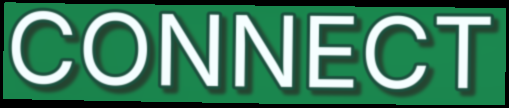
CONNECT